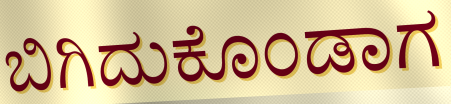
ಬಿಗಿದುಕೊಂಡಾಗ